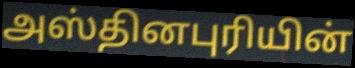
அஸ்தினபுரியின்